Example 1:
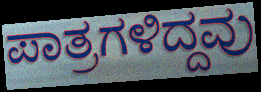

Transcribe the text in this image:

ಪಾತ್ರಗಳಿದ್ದವು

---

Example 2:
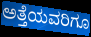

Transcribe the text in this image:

ಅತ್ತೆಯವರಿಗೂ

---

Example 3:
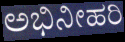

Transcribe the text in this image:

ಅಭಿನೀಹರಿ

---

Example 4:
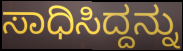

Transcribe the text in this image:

ಸಾಧಿಸಿದ್ದನ್ನು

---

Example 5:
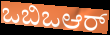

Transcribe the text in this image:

ಒಬಿಒಆರ್